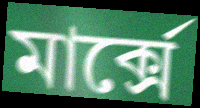
মাৰ্ক্সে